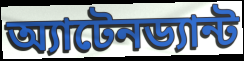
অ্যাটেনড্যান্ট